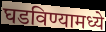
घडविण्यामध्ये